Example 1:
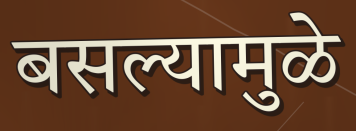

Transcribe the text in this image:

बसल्यामुळे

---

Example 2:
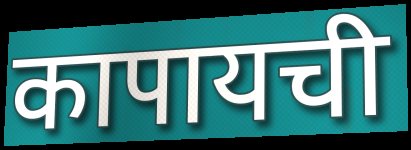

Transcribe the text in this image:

कापायची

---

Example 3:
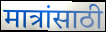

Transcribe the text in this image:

मात्रांसाठी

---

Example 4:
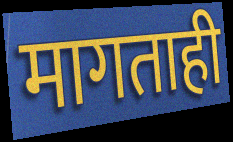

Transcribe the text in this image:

मागताही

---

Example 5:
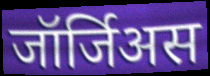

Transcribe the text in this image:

जॉर्जिअस